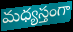
మధ్యస్తంగా